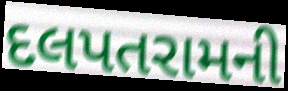
દલપતરામની